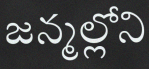
జన్మల్లోని